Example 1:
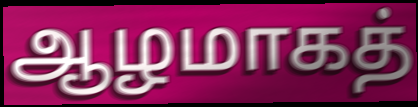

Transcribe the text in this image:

ஆழமாகத்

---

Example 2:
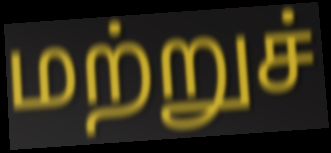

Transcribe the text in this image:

மற்றுச்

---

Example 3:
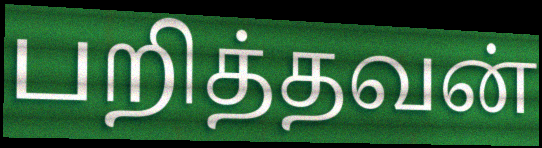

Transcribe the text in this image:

பறித்தவன்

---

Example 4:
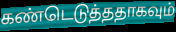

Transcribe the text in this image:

கண்டெடுத்ததாகவும்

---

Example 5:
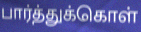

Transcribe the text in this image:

பார்த்துக்கொள்